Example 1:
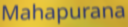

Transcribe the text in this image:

Mahapurana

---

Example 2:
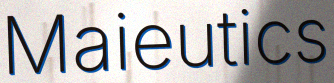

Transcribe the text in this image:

Maieutics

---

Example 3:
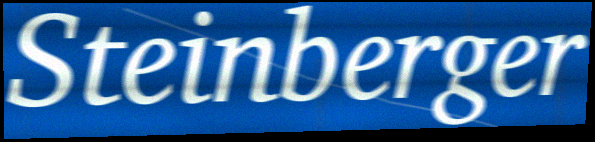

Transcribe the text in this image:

Steinberger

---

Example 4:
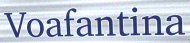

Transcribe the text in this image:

Voafantina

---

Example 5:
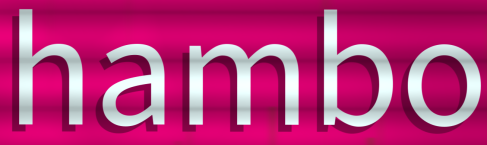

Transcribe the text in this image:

hambo